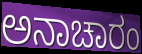
ಅನಾಚಾರಂ